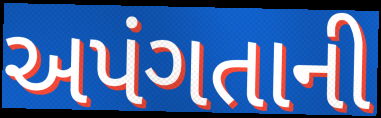
અપંગતાની